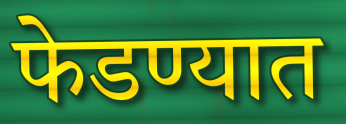
फेडण्यात